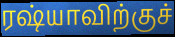
ரஷ்யாவிற்குச்